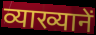
व्याख्यानें